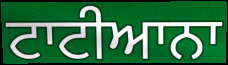
ਟਾਟੀਆਨਾ